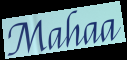
Mahaa